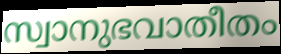
സ്വാനുഭവാതീതം